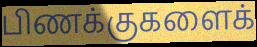
பிணக்குகளைக்